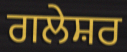
ਗਲੇਸ਼ਰ